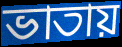
ভাতায়